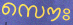
സൌഃ